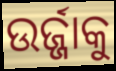
ଉର୍ଜ୍ଜାକୁ